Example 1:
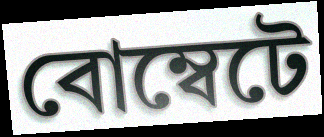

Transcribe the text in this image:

বোম্বেটে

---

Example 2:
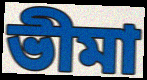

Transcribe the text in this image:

ভীমা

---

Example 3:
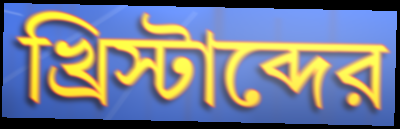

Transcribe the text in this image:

খ্রিস্টাব্দের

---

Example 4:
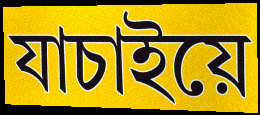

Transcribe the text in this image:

যাচাইয়ে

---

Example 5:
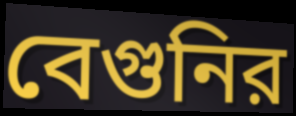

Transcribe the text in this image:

বেগুনির